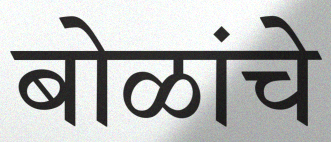
बोळांचे